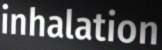
inhalation